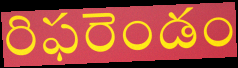
రిఫరెండం